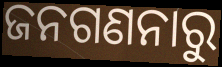
ଜନଗଣନାରୁ